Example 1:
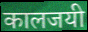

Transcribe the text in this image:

कालजयी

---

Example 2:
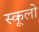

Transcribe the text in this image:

स्कूलो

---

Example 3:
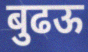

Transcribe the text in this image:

बुढऊ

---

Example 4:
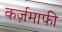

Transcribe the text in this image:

कर्ज़माफी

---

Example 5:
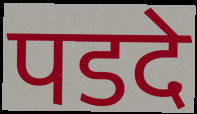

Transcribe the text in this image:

पडदे